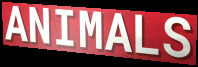
ANIMALS